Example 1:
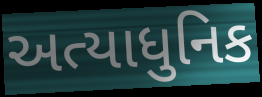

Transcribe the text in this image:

અત્યાધુનિક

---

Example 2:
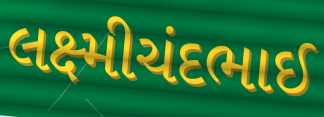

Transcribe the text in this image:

લક્ષ્મીચંદભાઈ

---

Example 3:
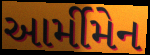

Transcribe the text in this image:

આર્મીમેન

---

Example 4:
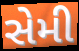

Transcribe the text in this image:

સેમી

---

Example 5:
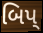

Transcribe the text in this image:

બિપ્